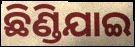
ଛିଣ୍ଡିଯାଇ